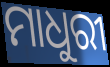
ମାଧୁରୀ